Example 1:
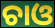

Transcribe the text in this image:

ଚାଓ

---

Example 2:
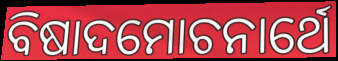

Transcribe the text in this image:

ବିଷାଦମୋଚନାର୍ଥେ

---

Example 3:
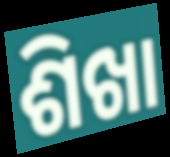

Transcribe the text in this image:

ଶିଖା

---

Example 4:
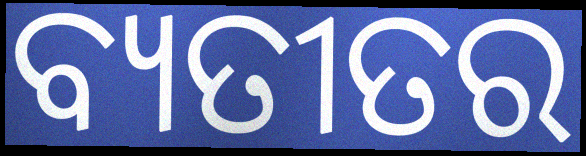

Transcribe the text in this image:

ବ୍ୟତୀତର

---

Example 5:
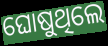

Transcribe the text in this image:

ଘୋଷୁଥିଲେ